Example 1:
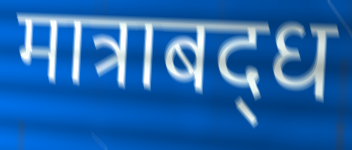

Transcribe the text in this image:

मात्राबद्ध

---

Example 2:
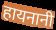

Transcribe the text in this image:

हायनानी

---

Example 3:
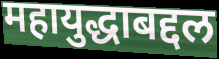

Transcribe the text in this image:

महायुद्धाबद्दल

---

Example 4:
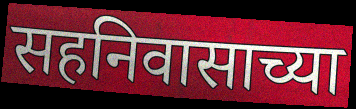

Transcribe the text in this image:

सहनिवासाच्या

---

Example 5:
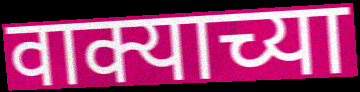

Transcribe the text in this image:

वाक्याच्या